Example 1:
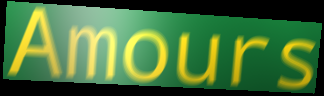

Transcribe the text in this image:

Amours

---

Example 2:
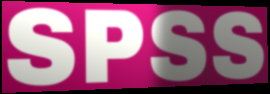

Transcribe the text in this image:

SPSS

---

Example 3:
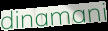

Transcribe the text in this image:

dinamani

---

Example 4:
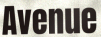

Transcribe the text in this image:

Avenue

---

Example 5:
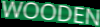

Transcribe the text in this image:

WOODEN